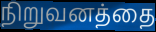
நிறுவனத்தை